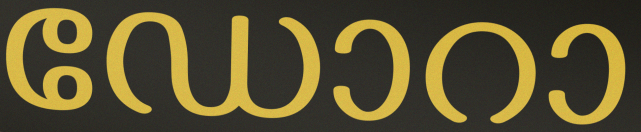
ഡോറാ